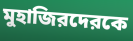
মুহাজিরদেরকে